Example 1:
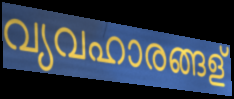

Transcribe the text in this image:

വ്യവഹാരങ്ങള്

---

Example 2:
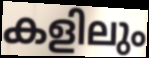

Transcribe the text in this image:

കളിലും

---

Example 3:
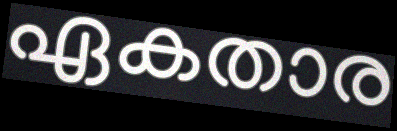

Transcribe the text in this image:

ഏകതാര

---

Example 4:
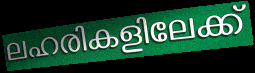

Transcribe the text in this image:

ലഹരികളിലേക്ക്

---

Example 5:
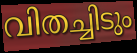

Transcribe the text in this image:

വിതച്ചിടും